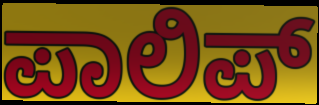
ಪಾಲಿಪ್